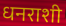
धनराशी